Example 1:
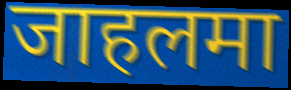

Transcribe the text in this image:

जाहलमा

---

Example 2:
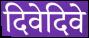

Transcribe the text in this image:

दिवेदिवे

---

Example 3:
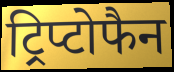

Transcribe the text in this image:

ट्रिप्टोफैन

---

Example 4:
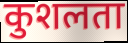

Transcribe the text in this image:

कुशलता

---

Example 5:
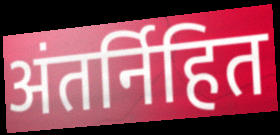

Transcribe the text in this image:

अंतर्निहित